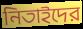
নিতাইদের